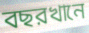
বছরখানে